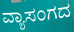
ವ್ಯಾಸಂಗದ